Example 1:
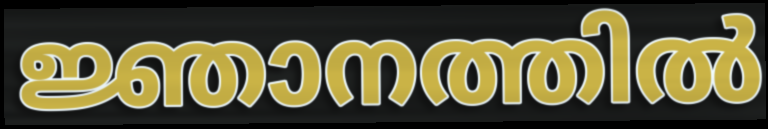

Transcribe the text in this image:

ജ്ഞാനത്തിൽ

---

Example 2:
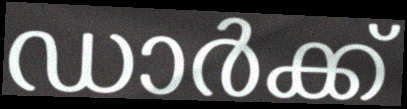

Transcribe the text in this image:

ഡാർക്ക്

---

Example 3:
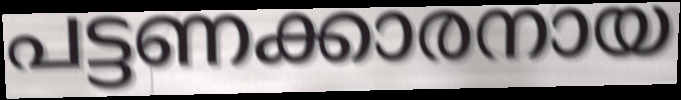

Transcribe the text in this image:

പട്ടണക്കാരനായ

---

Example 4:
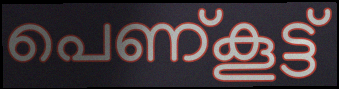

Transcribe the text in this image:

പെണ്കൂട്ട്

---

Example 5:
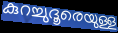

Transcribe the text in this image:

കുറച്ചുദൂരെയുള്ള